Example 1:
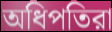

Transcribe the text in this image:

অধিপতিরা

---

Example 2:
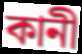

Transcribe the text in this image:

কানী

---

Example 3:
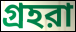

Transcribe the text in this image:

গ্রহরা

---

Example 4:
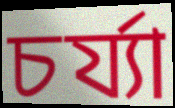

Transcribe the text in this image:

চর্য্যা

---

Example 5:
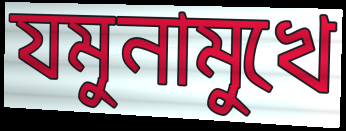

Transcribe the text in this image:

যমুনামুখে